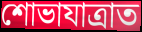
শোভাযাত্ৰাত